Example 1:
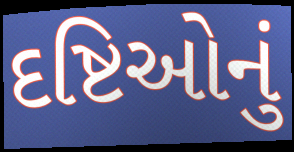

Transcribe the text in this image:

દષ્ટિઓનું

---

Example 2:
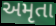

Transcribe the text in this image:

અમૃતા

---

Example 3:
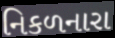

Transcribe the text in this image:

નિકળનારા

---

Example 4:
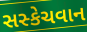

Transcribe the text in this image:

સસ્કેચવાન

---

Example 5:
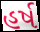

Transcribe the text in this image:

હર્ષ